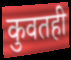
कुवतही